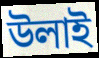
উলাই